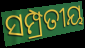
ସମ୍ପ୍ରତୀୟ